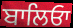
ਬਾਲਿਓਾ